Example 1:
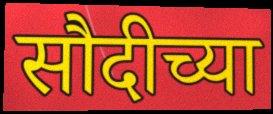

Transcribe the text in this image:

सौदीच्या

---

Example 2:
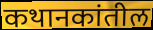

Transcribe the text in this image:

कथानकांतील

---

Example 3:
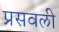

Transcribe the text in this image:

प्रसवली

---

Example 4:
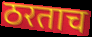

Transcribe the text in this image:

ठरताच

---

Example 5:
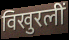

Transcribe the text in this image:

विखुरलीं